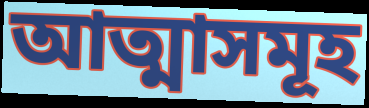
আত্মাসমূহ